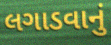
લગાડવાનું